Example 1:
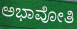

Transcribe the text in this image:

ಅಭಾವೋತಿ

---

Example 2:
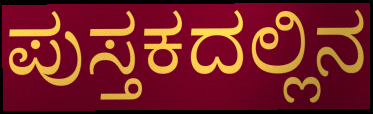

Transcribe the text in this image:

ಪುಸ್ತಕದಲ್ಲಿನ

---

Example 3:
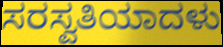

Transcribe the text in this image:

ಸರಸ್ವತಿಯಾದಳು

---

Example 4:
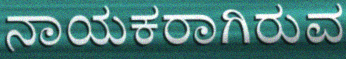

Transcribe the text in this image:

ನಾಯಕರಾಗಿರುವ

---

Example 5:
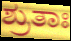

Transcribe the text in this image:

ಶ್ರುತಾಃ